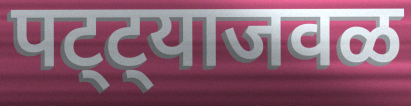
पट्ट्याजवळ